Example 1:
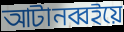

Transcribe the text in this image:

আটানব্বইয়ে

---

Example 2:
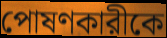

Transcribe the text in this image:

পোষণকারীকে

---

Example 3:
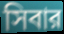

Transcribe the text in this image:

সিবার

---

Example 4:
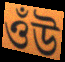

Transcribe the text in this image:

ওঁউ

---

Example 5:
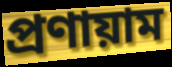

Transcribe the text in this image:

প্রণায়াম